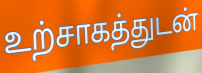
உற்சாகத்துடன்